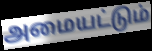
அமையட்டும்